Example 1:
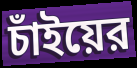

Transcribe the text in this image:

চাঁইয়ের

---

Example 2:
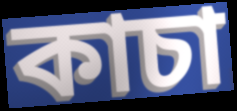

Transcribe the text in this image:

কাচা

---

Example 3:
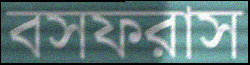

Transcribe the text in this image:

বসফরাস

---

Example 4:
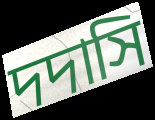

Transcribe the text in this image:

দদাসি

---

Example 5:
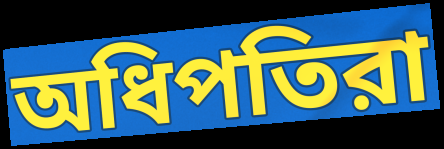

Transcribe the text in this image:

অধিপতিরা